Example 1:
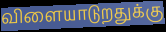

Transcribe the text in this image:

விளையாடுறதுக்கு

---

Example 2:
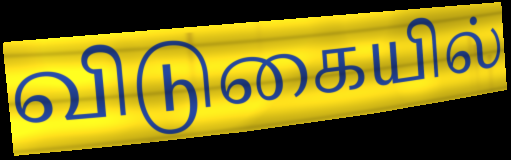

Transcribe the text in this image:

விடுகையில்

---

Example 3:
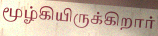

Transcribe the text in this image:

மூழ்கியிருக்கிறார்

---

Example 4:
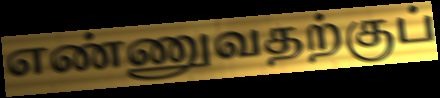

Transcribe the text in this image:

எண்ணுவதற்குப்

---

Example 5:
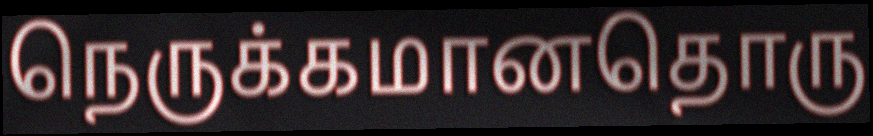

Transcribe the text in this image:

நெருக்கமானதொரு